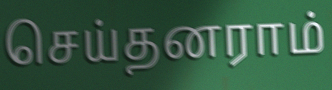
செய்தனராம்